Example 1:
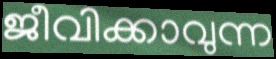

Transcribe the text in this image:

ജീവിക്കാവുന്ന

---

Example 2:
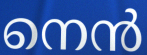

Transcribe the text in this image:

നെൻ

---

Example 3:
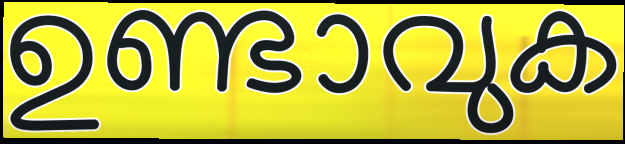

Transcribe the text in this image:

ഉണ്ടാവുക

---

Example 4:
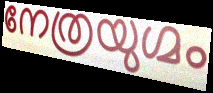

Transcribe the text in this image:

നേത്രയുഗ്മം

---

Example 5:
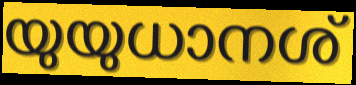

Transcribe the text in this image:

യുയുധാനശ്